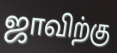
ஜாவிற்கு